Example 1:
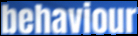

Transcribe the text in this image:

behaviour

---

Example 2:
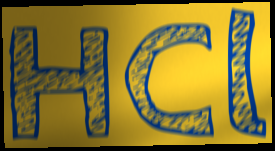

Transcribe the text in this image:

HCl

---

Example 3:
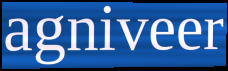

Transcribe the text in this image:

agniveer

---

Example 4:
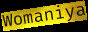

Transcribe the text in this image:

Womaniya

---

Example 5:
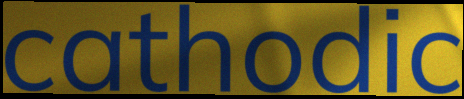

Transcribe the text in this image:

cathodic